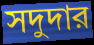
সদুদার